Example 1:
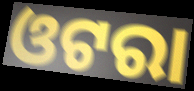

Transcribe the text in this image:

ଓଟରା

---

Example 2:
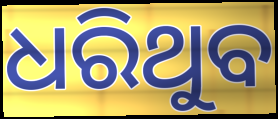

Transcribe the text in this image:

ଧରିଥୁବ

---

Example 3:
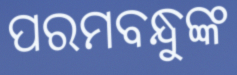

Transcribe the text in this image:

ପରମବନ୍ଧୁଙ୍କ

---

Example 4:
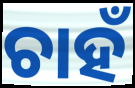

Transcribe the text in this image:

ଚାହଁ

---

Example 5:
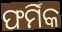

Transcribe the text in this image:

ଫର୍ମିକ